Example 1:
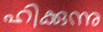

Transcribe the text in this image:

ഹിക്കുന്നു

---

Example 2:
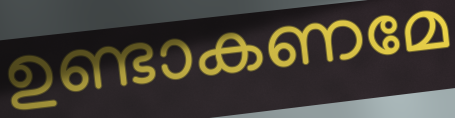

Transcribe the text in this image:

ഉണ്ടാകണമേ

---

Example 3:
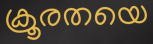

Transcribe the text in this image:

ക്രൂരതയെ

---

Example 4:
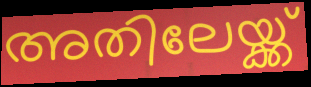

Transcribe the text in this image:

അതിലേയ്ക്ക്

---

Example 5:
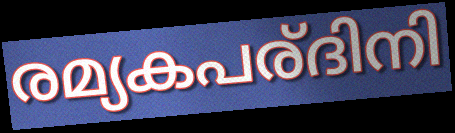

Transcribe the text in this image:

രമ്യകപര്ദിനി